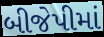
બીજેપીમાં